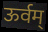
ऊर्वम्